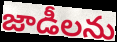
జాడీలను